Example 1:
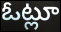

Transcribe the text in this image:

ఓట్లూ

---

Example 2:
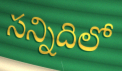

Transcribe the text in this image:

సన్నిదిలో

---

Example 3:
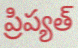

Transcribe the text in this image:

ప్రిప్యత్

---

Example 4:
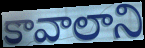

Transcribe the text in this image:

కావాలాని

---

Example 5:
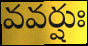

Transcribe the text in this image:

వవర్షుః